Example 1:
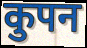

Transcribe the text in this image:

कुपन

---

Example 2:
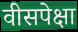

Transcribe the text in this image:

वीसपेक्षा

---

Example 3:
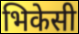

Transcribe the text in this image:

भिकेसी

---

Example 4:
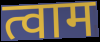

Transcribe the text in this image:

त्वाम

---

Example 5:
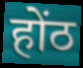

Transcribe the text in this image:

होंठ